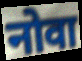
नोवा